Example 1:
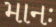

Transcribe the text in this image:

માનઃ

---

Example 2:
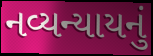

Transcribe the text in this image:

નવ્યન્યાયનું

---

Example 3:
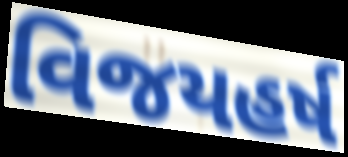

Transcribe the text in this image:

વિજયહર્ષ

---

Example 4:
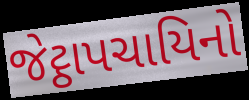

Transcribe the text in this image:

જેટ્ઠાપચાયિનો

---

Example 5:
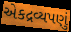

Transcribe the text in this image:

એકદ્રવ્યપણું